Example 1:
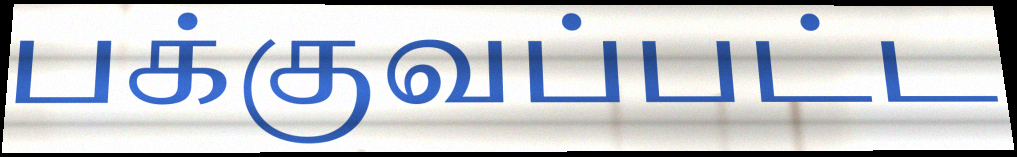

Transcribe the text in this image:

பக்குவப்பட்ட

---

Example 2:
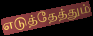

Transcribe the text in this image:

எடுத்தேத்தும்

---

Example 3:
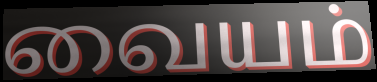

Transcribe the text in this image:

வையம்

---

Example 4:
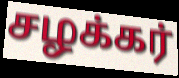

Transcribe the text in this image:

சழக்கர்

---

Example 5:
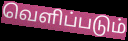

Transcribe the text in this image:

வெளிப்படும்